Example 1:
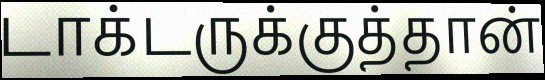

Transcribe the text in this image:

டாக்டருக்குத்தான்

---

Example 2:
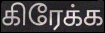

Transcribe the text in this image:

கிரேக்க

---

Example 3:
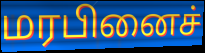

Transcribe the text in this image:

மரபினைச்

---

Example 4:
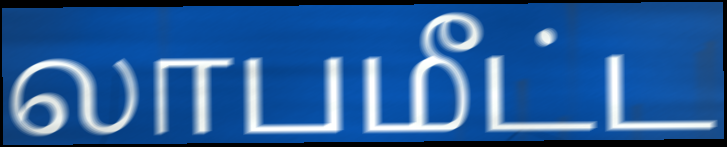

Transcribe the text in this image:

லாபமீட்ட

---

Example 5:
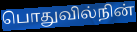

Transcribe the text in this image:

பொதுவில்நின்